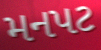
મનપટ